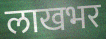
लाखभर